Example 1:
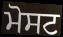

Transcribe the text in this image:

ਮੋਸਟ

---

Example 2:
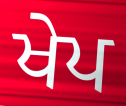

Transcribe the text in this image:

ਖੇਪ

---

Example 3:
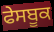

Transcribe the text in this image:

ਫੇਸਬੂਕ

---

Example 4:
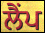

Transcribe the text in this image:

ਲੈਂਪ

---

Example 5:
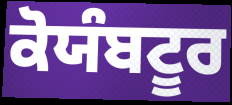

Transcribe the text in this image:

ਕੋਯੰਬਟੂਰ